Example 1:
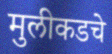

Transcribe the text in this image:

मुलीकडचे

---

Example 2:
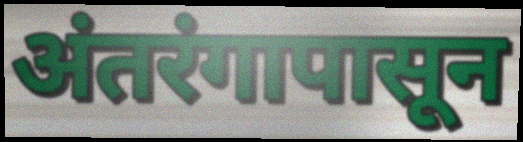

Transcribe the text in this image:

अंतरंगापासून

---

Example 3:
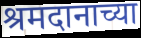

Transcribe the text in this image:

श्रमदानाच्या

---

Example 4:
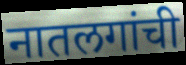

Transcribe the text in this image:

नातलगांची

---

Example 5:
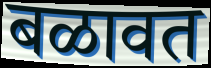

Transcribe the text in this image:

बळावत